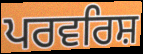
ਪਰਵਰਿਸ਼